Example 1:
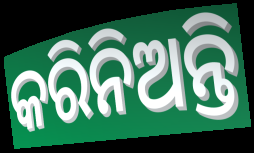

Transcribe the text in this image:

କରିନିଅନ୍ତି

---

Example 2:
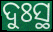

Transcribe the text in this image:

ଦୁଃସ୍ଥ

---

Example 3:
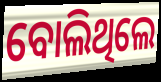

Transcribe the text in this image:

ବୋଲିଥିଲେ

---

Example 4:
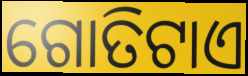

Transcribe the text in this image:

ଗୋତିଟାଏ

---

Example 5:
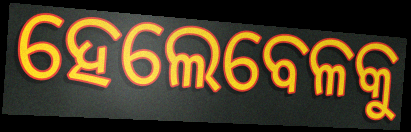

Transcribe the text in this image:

ହେଲେବେଳକୁ